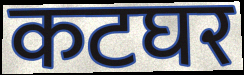
कटघर